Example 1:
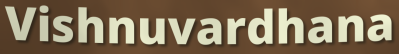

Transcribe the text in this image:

Vishnuvardhana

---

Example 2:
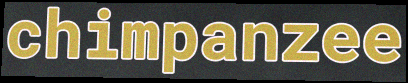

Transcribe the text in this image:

chimpanzee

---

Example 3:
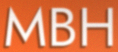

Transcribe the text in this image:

MBH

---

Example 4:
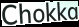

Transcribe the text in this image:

Chokka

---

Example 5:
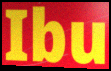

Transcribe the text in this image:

Ibu